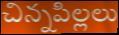
చిన్నపిల్లలు